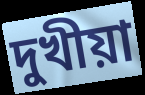
দুখীয়া